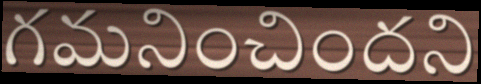
గమనించిందని